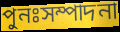
পুনঃসম্পাদনা